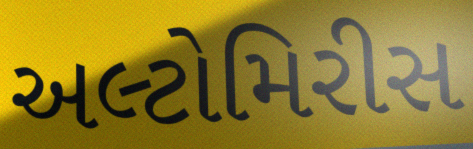
અલ્ટોમિરીસ